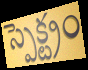
స్పెక్ట్రం